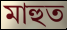
মাহুত